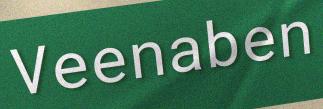
Veenaben